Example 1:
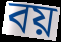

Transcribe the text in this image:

বয়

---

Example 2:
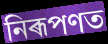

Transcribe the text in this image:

নিৰূপণত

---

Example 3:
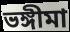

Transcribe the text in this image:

ভঙ্গীমা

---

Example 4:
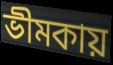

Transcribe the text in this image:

ভীমকায়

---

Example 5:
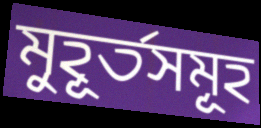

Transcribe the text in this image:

মুহূৰ্তসমূহ